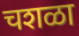
चशळा